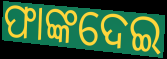
ଫାଙ୍କଦେଇ